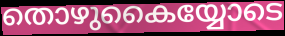
തൊഴുകൈയ്യോടെ